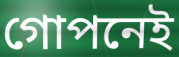
গোপনেই